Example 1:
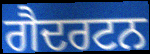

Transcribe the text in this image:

ਗੈਦਰਟਨ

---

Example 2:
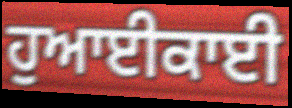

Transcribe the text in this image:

ਹੁਆਈਕਾਈ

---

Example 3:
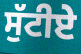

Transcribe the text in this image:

ਸੁੱਟੀਏ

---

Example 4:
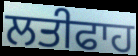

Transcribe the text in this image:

ਲਤੀਫਾਹ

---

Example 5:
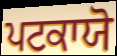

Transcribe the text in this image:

ਪਟਕਾਯੋ